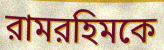
রামরহিমকে